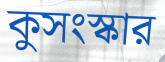
কুসংস্কার